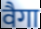
वैगा